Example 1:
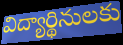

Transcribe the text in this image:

విద్యార్థినులకు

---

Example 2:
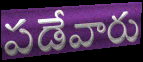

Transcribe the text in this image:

పడేవారు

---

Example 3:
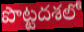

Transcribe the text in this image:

పొట్టదశలో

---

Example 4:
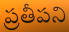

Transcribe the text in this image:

ప్రతీపని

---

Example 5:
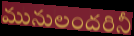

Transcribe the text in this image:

మునులందరినీ